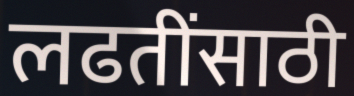
लढतींसाठी